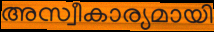
അസ്വീകാര്യമായി